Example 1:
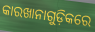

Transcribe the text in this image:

କାରଖାନାଗୁଡ଼ିକରେ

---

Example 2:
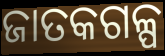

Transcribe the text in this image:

ଜାତକଗଳ୍ପ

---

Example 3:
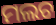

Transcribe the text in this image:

ମଲଚ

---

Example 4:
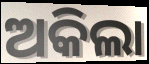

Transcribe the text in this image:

ଅକିଲା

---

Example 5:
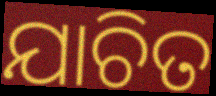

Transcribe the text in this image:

ଯାଚିତ